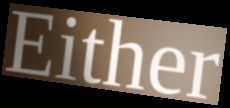
Either